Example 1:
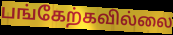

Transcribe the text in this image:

பங்கேற்கவில்லை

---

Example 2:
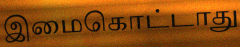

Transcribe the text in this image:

இமைகொட்டாது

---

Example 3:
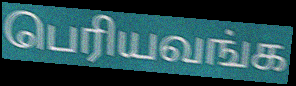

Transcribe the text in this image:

பெரியவங்க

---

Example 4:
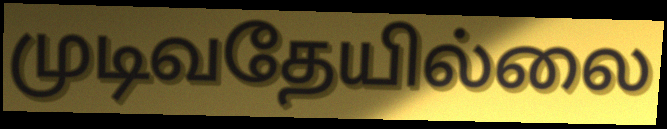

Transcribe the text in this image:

முடிவதேயில்லை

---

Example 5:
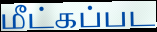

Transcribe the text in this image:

மீட்கப்பட